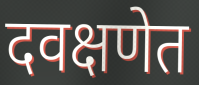
दवक्षणेत